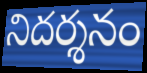
నిదర్శనం